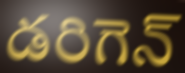
డరిగెన్